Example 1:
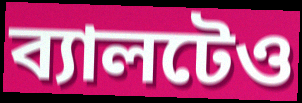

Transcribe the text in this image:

ব্যালটেও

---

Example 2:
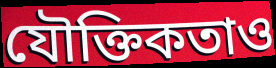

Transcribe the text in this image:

যৌক্তিকতাও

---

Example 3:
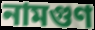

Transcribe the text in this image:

নামগুণ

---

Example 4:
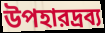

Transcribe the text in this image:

উপহারদ্রব্য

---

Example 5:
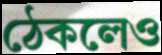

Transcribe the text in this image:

ঠেকলেও